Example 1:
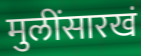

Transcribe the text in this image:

मुलींसारखं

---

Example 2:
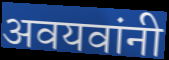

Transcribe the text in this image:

अवयवांनी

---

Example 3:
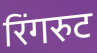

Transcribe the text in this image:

रिंगरुट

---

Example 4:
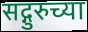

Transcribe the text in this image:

सद्गुरुच्या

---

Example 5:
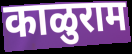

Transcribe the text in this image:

काळुराम